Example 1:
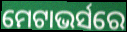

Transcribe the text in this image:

ମେଟାଭର୍ସରେ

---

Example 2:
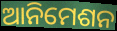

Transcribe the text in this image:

ଆନିମେଶନ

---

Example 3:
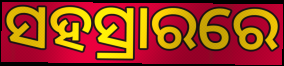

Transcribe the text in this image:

ସହସ୍ରାରରେ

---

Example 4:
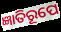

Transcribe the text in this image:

ଜ୍ଞାତିରୂପେ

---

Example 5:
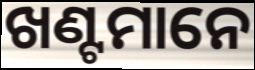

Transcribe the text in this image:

ଖଣ୍ଟମାନେ